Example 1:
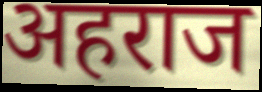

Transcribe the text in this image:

अहराज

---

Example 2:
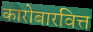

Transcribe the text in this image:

कारोबारवित्त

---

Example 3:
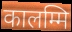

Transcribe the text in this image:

कालम्मि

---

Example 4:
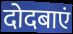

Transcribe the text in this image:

दोदबाएं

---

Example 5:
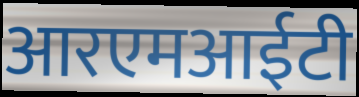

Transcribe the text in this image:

आरएमआईटी